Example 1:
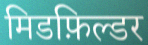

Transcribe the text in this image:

मिडफ़िल्डर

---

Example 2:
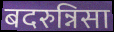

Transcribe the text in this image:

बदरुन्निसा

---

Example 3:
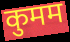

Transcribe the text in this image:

कुमम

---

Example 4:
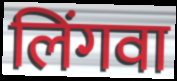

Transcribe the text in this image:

लिंगवा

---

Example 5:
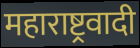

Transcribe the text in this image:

महाराष्ट्रवादी